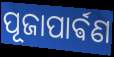
ପୂଜାପାର୍ଵଣ